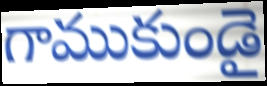
గాముకుండై